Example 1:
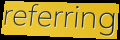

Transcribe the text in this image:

referring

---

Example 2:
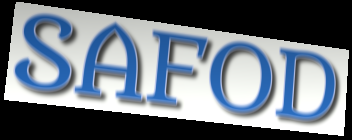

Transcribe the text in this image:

SAFOD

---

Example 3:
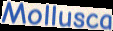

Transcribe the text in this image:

Mollusca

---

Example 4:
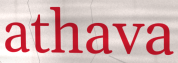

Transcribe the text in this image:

athava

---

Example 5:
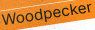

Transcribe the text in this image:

Woodpecker